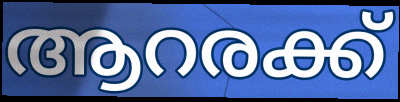
ആറരക്ക്